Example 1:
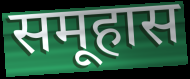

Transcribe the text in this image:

समूहास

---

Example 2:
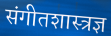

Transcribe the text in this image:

संगीतशास्त्रज्ञ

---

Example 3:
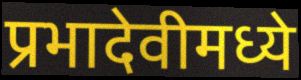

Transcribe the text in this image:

प्रभादेवीमध्ये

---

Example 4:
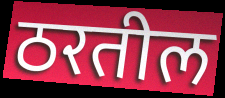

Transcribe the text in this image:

ठरतील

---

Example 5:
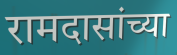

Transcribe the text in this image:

रामदासांच्या